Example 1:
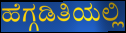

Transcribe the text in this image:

ಹೆಗ್ಗಡಿತಿಯಲ್ಲಿ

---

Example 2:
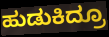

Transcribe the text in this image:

ಹುಡುಕಿದ್ರೂ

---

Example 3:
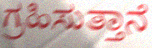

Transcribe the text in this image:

ಗ್ರಹಿಸುತ್ತಾನೆ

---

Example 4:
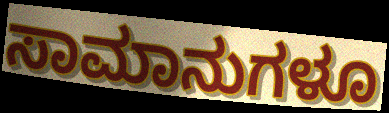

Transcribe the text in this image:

ಸಾಮಾನುಗಳೂ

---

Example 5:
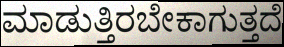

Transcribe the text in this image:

ಮಾಡುತ್ತಿರಬೇಕಾಗುತ್ತದೆ